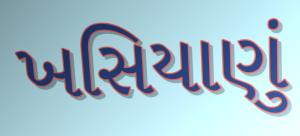
ખસિયાણું